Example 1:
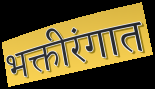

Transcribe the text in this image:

भक्तीरंगात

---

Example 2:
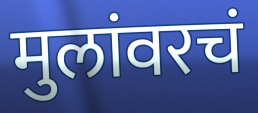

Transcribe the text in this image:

मुलांवरचं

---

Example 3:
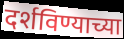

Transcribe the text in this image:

दर्शविण्याच्या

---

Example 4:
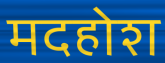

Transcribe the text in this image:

मदहोश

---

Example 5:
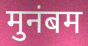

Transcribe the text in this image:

मुनंबम